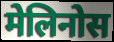
मेलिनोस